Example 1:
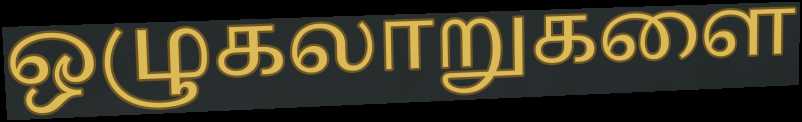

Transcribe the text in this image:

ஒழுகலாறுகளை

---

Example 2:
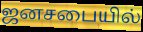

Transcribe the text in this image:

ஜனசபையில்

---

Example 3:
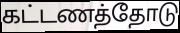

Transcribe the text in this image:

கட்டணத்தோடு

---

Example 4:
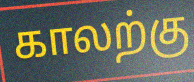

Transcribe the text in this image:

காலற்கு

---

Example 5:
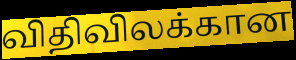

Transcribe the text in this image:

விதிவிலக்கான